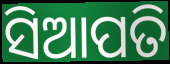
ସିଆପତି